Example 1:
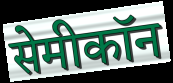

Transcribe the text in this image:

सेमीकॉन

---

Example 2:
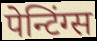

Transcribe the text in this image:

पेन्टिंग्स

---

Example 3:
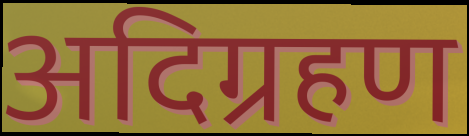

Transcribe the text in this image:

अदिग्रहण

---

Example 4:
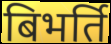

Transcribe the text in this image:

बिभर्ति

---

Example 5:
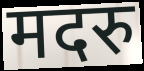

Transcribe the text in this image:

मदरु